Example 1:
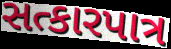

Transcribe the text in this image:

સત્કારપાત્ર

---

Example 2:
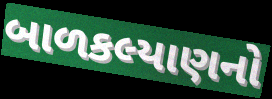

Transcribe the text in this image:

બાળકલ્યાણનો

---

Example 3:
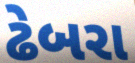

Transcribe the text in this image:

ઢેબરા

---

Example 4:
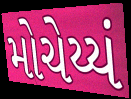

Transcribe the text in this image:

મોચેય્યં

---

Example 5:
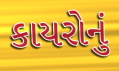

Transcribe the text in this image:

કાયરોનું